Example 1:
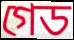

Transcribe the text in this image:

গেড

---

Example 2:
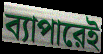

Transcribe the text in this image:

ব্যাপারেই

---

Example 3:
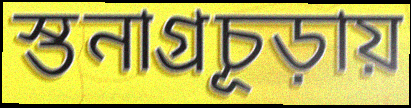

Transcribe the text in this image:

স্তনাগ্রচূড়ায়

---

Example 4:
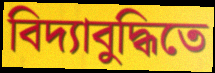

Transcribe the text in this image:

বিদ্যাবুদ্ধিতে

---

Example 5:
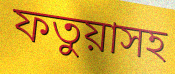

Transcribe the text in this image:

ফতুয়াসহ